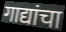
गाद्यांचा